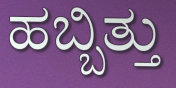
ಹಬ್ಬಿತ್ತು